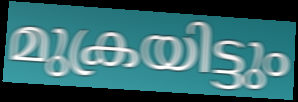
മുക്രയിട്ടും